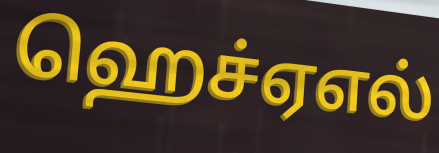
ஹெச்ஏஎல்